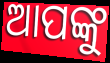
ଆପଙ୍କୁ